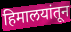
हिमालयांतून